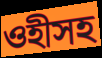
ওহীসহ